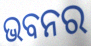
ଭବନର